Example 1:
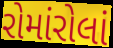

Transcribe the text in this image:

રોમાંરોલાં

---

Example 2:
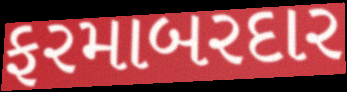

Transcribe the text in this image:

ફરમાબરદાર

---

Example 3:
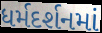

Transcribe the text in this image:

ધર્મદર્શનમાં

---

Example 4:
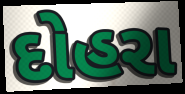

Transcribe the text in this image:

દોહરા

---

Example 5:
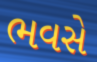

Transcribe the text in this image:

ભવસે